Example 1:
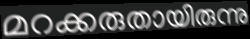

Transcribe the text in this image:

മറക്കരുതായിരുന്നു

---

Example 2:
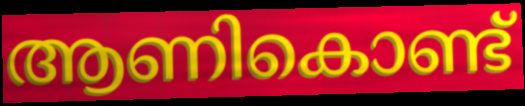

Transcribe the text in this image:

ആണികൊണ്ട്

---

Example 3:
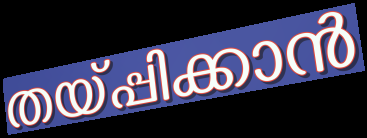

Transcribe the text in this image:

തയ്പ്പിക്കാൻ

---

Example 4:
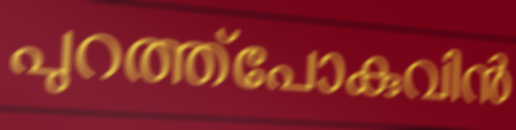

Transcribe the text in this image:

പുറത്ത്പോകുവിൻ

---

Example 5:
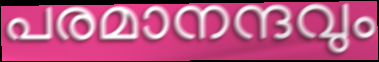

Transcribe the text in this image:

പരമാനന്ദവും